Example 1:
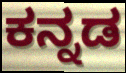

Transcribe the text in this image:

ಕನ್ನಡ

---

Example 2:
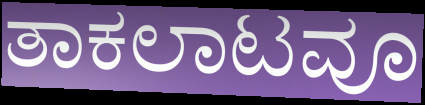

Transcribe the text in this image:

ತಾಕಲಾಟವೂ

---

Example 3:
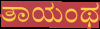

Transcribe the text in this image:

ತಾಯಂಥ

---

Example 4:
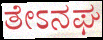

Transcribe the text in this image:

ತೇಽನಘ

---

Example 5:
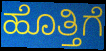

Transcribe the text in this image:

ಹೊತ್ತಿಗೆ